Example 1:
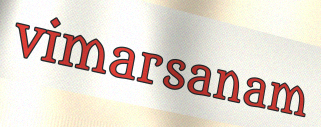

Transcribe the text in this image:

vimarsanam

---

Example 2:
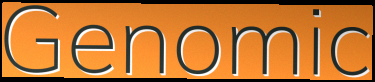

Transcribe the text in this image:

Genomic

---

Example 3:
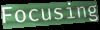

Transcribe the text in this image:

Focusing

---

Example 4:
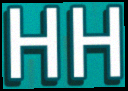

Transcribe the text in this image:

HH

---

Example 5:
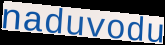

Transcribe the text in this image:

naduvodu